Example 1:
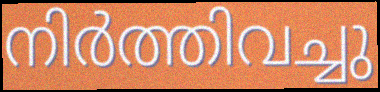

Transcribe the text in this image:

നിർത്തിവച്ചു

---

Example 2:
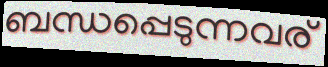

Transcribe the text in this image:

ബന്ധപ്പെടുന്നവര്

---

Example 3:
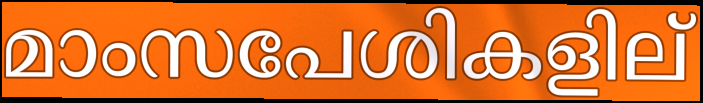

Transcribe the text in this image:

മാംസപേശികളില്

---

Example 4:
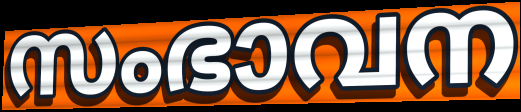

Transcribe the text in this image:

സംഭാവന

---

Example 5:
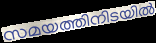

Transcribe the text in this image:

സമയത്തിനിടയിൽ